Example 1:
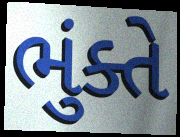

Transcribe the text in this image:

ભુંક્તે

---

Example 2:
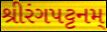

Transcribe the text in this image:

શ્રીરંગપટ્ટનમ્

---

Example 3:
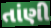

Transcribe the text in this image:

તાંણી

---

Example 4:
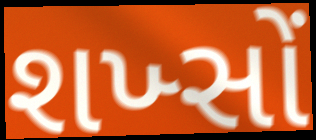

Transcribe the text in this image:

શખ્સોં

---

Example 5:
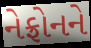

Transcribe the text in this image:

નેફ્રોનને